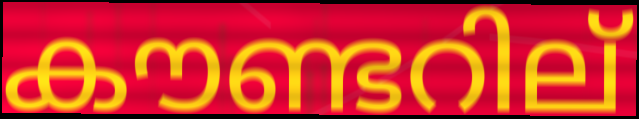
കൗണ്ടറില്